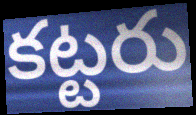
కట్టరు